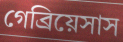
গেব্রিয়েসাস